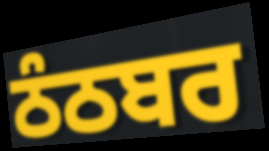
ਠੰਠਬਰ